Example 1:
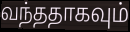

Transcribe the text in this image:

வந்ததாகவும்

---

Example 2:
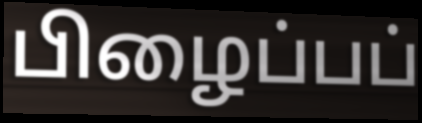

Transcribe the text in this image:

பிழைப்பப்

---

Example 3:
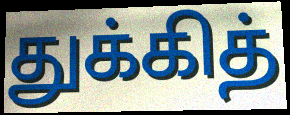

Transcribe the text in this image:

துக்கித்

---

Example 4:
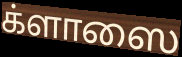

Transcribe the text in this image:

க்ளாஸை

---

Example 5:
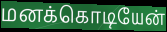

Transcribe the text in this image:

மனக்கொடியேன்